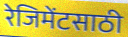
रेजिमेंटसाठी